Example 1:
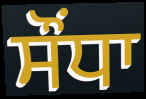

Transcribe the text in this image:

ਸੌਂਧਾ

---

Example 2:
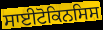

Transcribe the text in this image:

ਸਾਈਟੋਕਿਨਸਿਸ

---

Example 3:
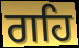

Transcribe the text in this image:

ਗਹਿ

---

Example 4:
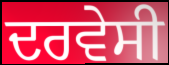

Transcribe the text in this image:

ਦਰਵੇਸੀ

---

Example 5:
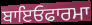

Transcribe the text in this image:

ਬਾਇਓਫਾਰਮਾ